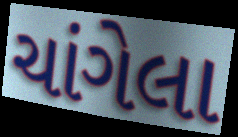
ચાંગેલા